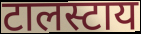
टालस्टाय